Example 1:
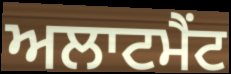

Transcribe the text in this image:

ਅਲਾਟਮੈਂਟ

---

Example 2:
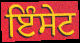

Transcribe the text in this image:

ਇੰਸੇਟ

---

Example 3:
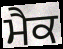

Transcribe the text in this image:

ਮੈਕ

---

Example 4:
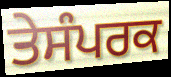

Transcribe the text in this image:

ਤੇਸੰਪਰਕ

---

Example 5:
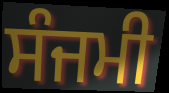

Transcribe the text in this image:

ਸੰਜਮੀ